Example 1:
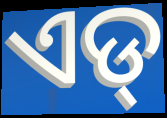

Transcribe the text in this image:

ଏଡ୍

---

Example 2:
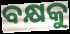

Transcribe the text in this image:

ବକ୍ଷକୁ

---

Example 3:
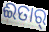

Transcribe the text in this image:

ଈତାର୍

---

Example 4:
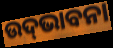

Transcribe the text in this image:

ଉଦ୍‍ଭାବନା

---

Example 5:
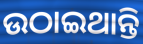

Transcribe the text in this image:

ଉଠାଇଥାନ୍ତି